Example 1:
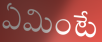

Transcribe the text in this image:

ఏమింటే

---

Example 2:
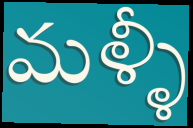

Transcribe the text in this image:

మళ్ళీ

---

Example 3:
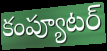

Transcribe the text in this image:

కంప్యూటర్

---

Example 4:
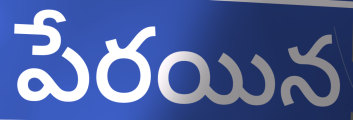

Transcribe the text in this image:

పేరయిన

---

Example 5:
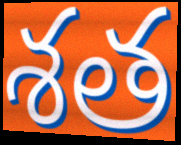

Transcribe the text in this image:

శత